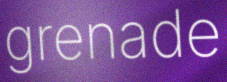
grenade